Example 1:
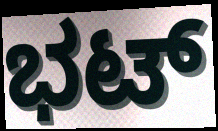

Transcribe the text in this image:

ಭಟ್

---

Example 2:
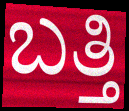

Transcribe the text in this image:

ಬತ್ತಿ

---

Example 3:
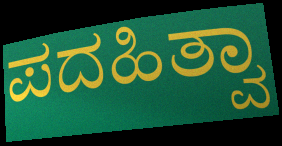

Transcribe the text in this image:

ಪದಹಿತ್ವಾ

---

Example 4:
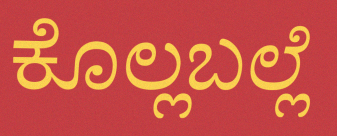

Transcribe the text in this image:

ಕೊಲ್ಲಬಲ್ಲೆ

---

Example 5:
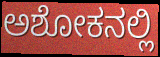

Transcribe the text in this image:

ಅಶೋಕನಲ್ಲಿ